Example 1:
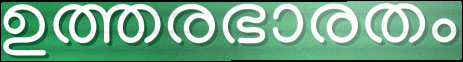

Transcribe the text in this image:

ഉത്തരഭാരതം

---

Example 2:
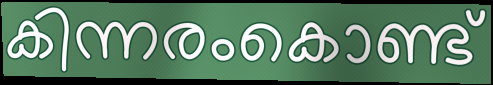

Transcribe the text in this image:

കിന്നരംകൊണ്ട്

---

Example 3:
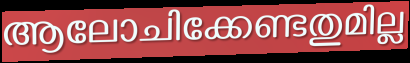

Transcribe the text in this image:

ആലോചിക്കേണ്ടതുമില്ല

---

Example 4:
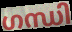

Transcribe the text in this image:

ഗന്ധി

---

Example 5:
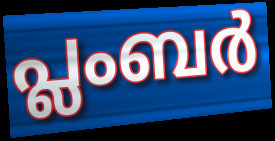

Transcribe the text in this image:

പ്ലംബർ